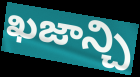
ఖజాన్చి